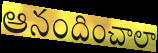
ఆనందించాలా